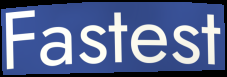
Fastest